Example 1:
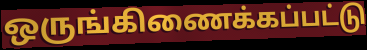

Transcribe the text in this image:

ஒருங்கிணைக்கப்பட்டு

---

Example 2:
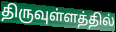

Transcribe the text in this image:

திருவுள்ளத்தில்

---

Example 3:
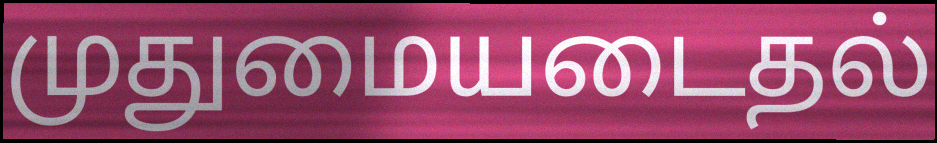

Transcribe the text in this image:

முதுமையடைதல்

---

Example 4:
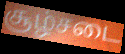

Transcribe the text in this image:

சூழ்சடை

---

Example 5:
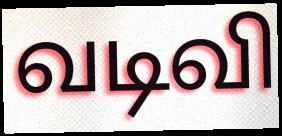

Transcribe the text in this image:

வடிவி